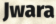
Jwara